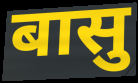
बासु